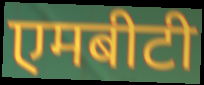
एमबीटी